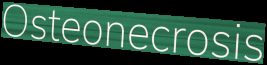
Osteonecrosis